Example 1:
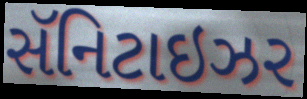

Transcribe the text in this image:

સૅનિટાઇઝર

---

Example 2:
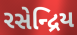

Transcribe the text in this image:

રસેન્દ્રિય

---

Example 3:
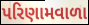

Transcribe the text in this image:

પરિણામવાળા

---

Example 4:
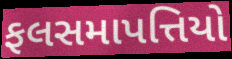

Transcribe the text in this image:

ફલસમાપત્તિયો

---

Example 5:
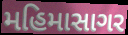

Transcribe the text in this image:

મહિમાસાગર